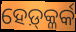
ହେଡ଼୍‍କ୍ଳର୍କ